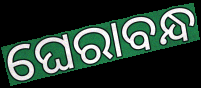
ଘେରାବନ୍ଧ